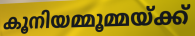
കൂനിയമ്മൂമ്മയ്ക്ക്